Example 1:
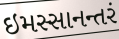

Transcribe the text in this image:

ઇમસ્સાનન્તરં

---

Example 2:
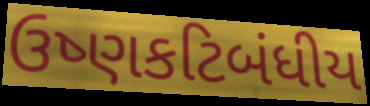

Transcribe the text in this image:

ઉષ્ણકટિબંધીય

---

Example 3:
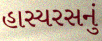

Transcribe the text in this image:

હાસ્યરસનું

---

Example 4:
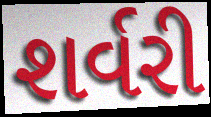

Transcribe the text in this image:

શર્વરી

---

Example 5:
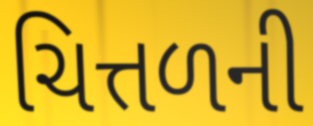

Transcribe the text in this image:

ચિત્તળની